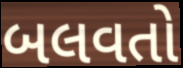
બલવતો